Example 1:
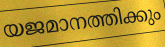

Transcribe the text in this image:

യജമാനത്തിക്കും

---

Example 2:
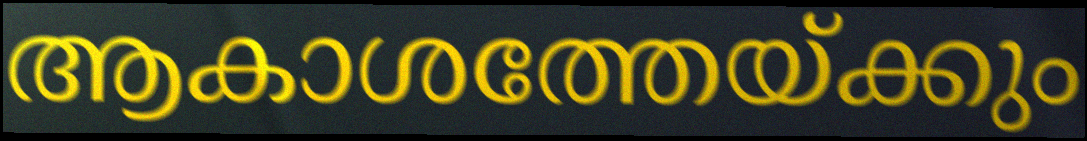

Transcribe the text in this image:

ആകാശത്തേയ്ക്കും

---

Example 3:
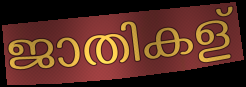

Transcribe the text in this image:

ജാതികള്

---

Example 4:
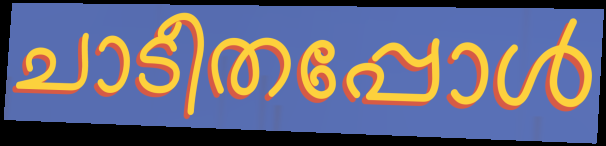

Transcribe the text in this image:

ചാടീതപ്പോൾ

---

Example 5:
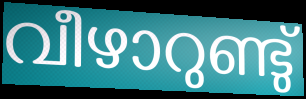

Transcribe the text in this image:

വീഴാറുണ്ടു്